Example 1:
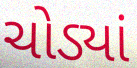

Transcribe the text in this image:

ચોડ્યાં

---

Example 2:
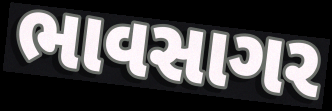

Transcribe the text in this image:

ભાવસાગર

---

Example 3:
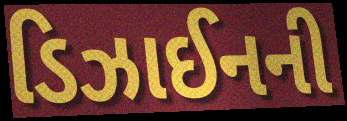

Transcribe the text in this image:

ડિઝાઈનની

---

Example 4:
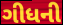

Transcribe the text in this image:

ગીધની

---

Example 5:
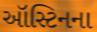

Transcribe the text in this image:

ઑસ્ટિનના